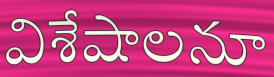
విశేషాలనూ